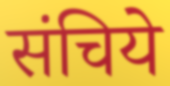
संचिये